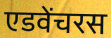
एडवेंचरस